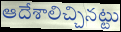
ఆదేశాలిచ్చినట్టు